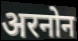
अरनोन